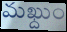
మఖ్దుం